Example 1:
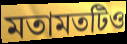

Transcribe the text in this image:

মতামতটিও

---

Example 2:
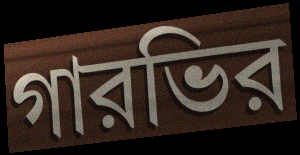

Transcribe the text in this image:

গারভির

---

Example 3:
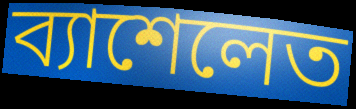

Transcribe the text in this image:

ব্যাশেলেত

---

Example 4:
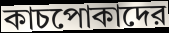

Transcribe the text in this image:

কাচপোকাদের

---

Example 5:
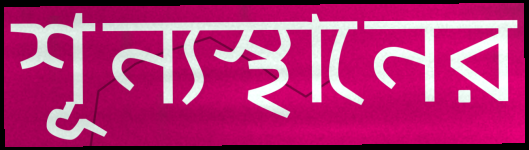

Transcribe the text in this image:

শূন্যস্থানের